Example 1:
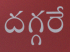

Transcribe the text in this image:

దగ్గరే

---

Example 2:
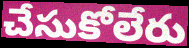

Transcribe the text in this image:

చేసుకోలేరు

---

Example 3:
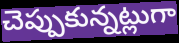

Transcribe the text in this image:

చెప్పుకున్నట్లుగా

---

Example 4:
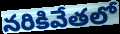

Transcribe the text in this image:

నరికివేతలో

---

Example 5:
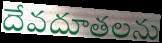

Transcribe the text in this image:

దేవదూతలను